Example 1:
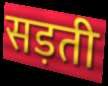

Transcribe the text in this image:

सड़ती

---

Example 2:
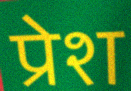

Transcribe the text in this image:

प्रेश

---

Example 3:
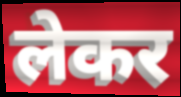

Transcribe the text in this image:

लेकर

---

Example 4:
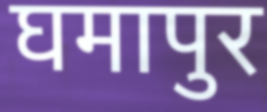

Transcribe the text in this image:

घमापुर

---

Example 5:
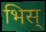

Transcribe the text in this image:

भिस्